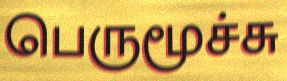
பெருமூச்சு